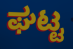
ಘಟ್ಟ